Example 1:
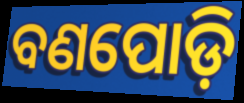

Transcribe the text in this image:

ବଣପୋଡ଼ି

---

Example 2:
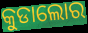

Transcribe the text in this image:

କୁଡାଲୋର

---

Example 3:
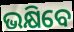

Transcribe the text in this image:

ଭକ୍ଷିବେ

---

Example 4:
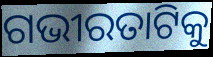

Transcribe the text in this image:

ଗଭୀରତାଟିକୁ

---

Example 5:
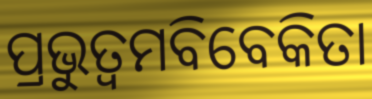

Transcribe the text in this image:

ପ୍ରଭୁତ୍ୱମବିବେକିତା